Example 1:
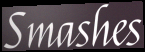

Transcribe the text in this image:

Smashes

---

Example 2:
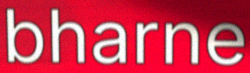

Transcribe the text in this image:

bharne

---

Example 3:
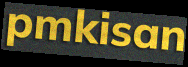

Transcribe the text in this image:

pmkisan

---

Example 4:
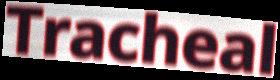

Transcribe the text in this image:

Tracheal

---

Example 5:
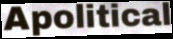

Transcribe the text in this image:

Apolitical